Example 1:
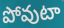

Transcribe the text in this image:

పోవుటా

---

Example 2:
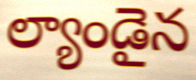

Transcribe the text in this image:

ల్యాండైన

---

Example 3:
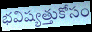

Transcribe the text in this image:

భవిష్యత్తుకోసం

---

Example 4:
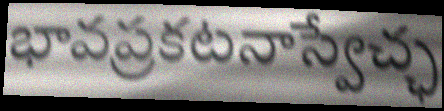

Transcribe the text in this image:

భావప్రకటనాస్వేచ్ఛ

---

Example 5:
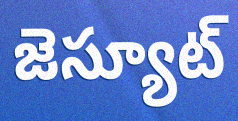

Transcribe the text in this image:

జెస్యూట్